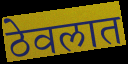
ठेवलात